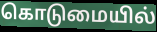
கொடுமையில்